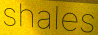
shales